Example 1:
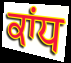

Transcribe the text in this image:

ਕਾਂਧ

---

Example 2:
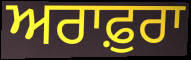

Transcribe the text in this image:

ਅਰਾਫ਼ੁਰਾ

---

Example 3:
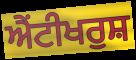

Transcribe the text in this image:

ਐਂਟੀਖਰੁਸ਼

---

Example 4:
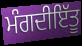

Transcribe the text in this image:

ਮੰਗਦੀਇੱਤੂ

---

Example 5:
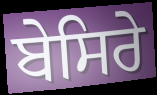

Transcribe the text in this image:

ਬੇਸਿਰੇ